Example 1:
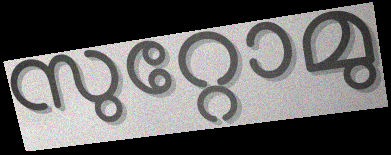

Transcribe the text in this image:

സുറ്റോമു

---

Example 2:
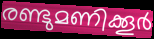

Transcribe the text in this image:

രണ്ടുമണിക്കൂർ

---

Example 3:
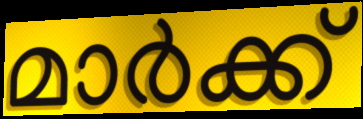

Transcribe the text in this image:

മാർക്ക്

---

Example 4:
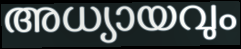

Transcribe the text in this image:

അധ്യായവും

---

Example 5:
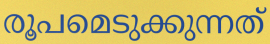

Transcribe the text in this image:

രൂപമെടുക്കുന്നത്